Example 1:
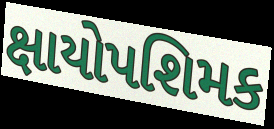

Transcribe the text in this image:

ક્ષાયોપશિમક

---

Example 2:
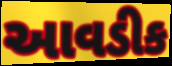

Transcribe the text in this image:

આવડીક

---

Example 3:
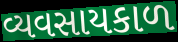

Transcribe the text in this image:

વ્યવસાયકાળ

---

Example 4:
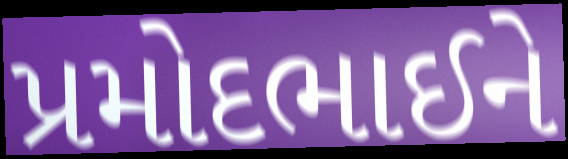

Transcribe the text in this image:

પ્રમોદભાઈને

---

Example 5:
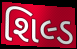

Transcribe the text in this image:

શિલ્ડ